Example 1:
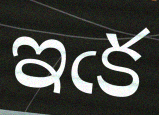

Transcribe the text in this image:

ఇఁక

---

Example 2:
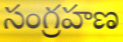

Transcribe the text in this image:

సంగ్రహణ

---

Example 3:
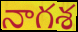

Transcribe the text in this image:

నాగశ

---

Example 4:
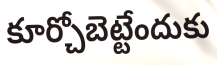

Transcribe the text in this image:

కూర్చోబెట్టేందుకు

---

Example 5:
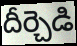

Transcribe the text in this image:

దీర్చెడి